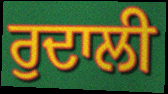
ਰੁਦਾਲੀ